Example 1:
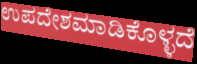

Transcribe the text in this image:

ಉಪದೇಶಮಾಡಿಕೊಳ್ಳದೆ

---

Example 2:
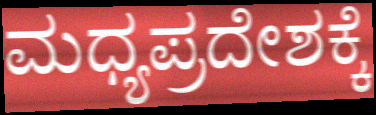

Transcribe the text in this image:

ಮಧ್ಯಪ್ರದೇಶಕ್ಕೆ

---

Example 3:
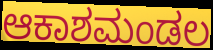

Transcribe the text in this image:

ಆಕಾಶಮಂಡಲ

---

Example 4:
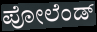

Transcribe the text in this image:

ಪೋಲೆಂಡ್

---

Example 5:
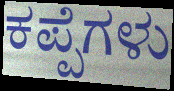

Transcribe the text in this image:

ಕಪ್ಪೆಗಳು